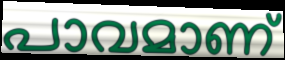
പാവമാണ്